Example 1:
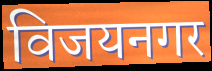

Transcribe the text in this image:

विजयनगर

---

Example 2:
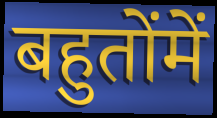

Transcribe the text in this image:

बहुतोंमें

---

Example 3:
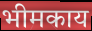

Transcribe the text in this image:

भीमकाय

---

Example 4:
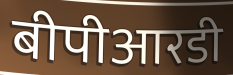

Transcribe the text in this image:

बीपीआरडी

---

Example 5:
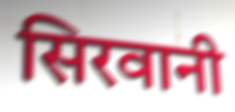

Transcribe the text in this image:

सिरवानी